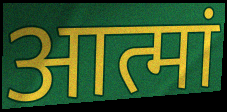
आत्मां